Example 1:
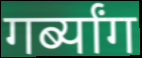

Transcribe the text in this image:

गर्ब्यांग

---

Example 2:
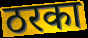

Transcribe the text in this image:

ठरका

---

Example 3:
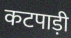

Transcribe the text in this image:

कटपाड़ी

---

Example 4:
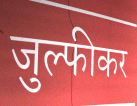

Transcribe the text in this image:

जुल्फीकर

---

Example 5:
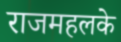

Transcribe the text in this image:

राजमहलके